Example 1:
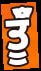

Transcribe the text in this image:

ਤੂੰਁ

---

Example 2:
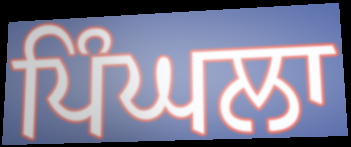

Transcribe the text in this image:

ਪਿੰਘਲਾ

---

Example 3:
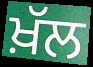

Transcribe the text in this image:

ਖ਼ੱਲ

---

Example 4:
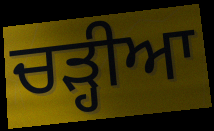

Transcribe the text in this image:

ਚੜ੍ਹੀਆ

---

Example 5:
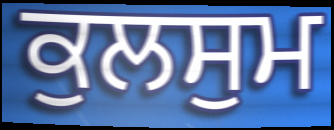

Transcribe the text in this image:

ਕੁਲਸੁਮ